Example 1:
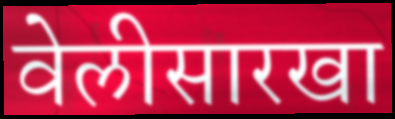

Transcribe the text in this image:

वेलीसारखा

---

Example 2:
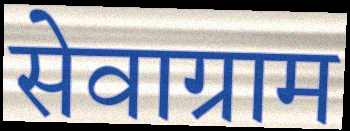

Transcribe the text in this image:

सेवाग्राम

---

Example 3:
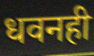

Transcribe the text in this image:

धवनही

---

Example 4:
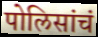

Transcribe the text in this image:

पोलिसांचं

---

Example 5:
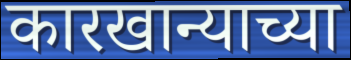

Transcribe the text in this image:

कारखान्याच्या